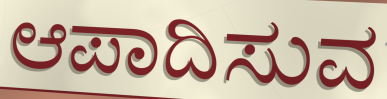
ಆಪಾದಿಸುವ